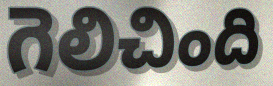
గెలిచింది